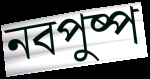
নবপুষ্প